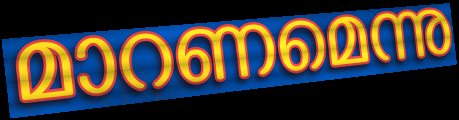
മാറണമെന്നു